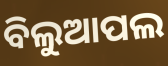
ବିଲୁଆପଲ